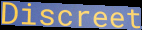
Discreet